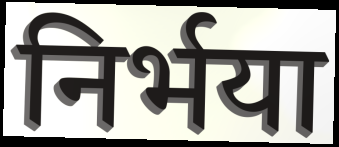
निर्भया